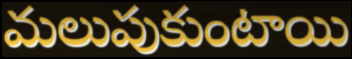
మలుపుకుంటాయి